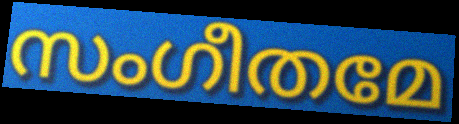
സംഗീതമേ